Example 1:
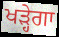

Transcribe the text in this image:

ਖੜ੍ਹੇਗਾ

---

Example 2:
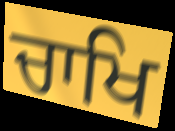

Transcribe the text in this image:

ਚਾਖਿ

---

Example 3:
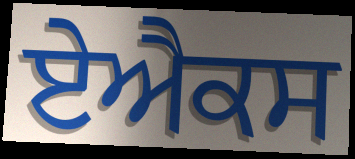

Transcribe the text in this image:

ਏਐਕਸ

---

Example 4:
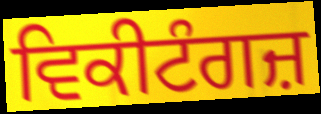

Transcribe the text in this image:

ਵਿਕੀਟੰਗਜ਼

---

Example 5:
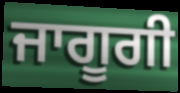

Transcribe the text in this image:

ਜਾਗੂਗੀ